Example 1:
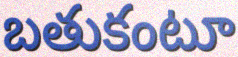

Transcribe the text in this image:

బతుకంటూ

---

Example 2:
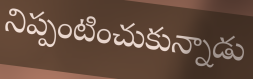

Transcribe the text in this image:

నిప్పంటించుకున్నాడు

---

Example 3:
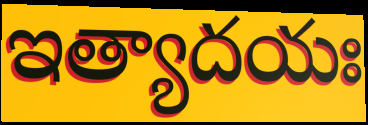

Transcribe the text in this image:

ఇత్యాదయః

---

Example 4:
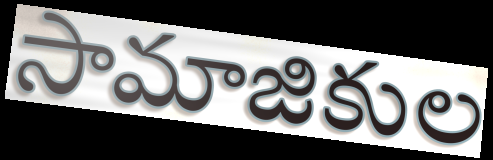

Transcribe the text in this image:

సామాజికుల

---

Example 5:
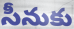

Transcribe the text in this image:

సీనుకు